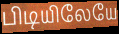
பிடியிலேயே